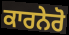
ਕਾਰਨੇਰੋ